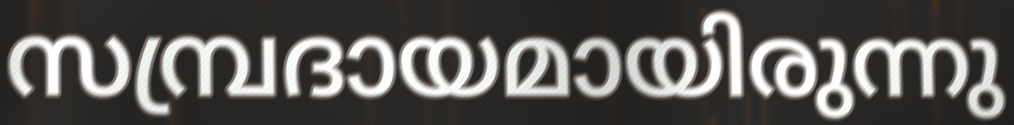
സമ്പ്രദായമായിരുന്നു